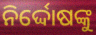
ନିର୍ଦ୍ଦୋଷଙ୍କୁ